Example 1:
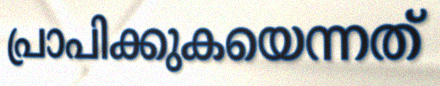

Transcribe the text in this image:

പ്രാപിക്കുകയെന്നത്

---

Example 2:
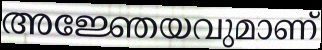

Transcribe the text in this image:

അജ്ഞേയവുമാണ്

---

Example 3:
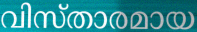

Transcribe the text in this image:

വിസ്താരമായ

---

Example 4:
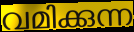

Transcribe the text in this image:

വമിക്കുന്ന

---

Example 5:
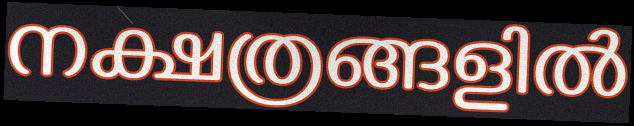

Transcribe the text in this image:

നക്ഷത്രങ്ങളിൽ